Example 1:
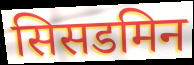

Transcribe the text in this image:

सिसडमिन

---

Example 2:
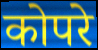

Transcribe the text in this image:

कोपरे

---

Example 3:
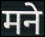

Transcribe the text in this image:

मने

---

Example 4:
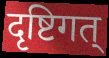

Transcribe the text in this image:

दृष्टिगत्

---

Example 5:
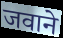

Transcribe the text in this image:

जवाने